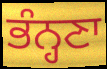
ਭੰਨ੍ਹਣਾ